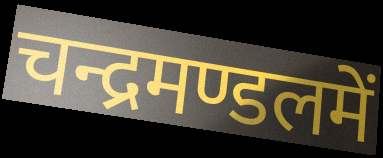
चन्द्रमण्डलमें